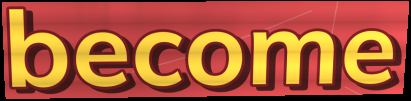
become